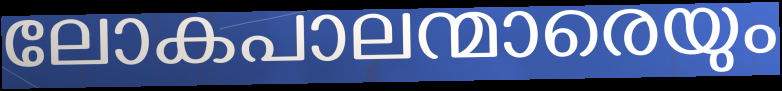
ലോകപാലന്മാരെയും